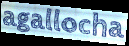
agallocha